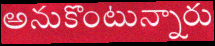
అనుకొంటున్నారు